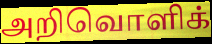
அறிவொளிக்